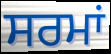
ਸਰਮਾਂ